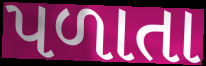
પળાતા